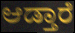
ಆಡ್ತಾರೆ